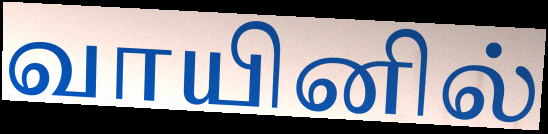
வாயினில்